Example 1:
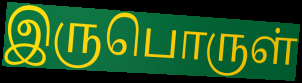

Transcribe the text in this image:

இருபொருள்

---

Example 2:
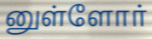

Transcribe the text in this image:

னுள்ளோர்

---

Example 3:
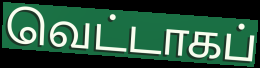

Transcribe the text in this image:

வெட்டாகப்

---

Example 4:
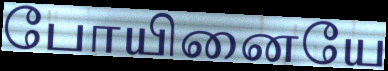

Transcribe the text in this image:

போயினையே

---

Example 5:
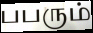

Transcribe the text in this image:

பபரும்